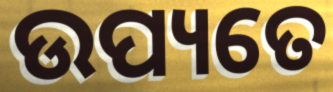
ଉପ୍ୟତେ